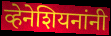
व्हेनेशियनांनी